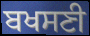
ਬਖਸਣੀ